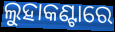
ଲୁହାକଣ୍ଟାରେ